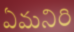
ఏమనిరి